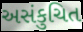
અસંકુચિત